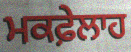
ਮਕਫ਼ੇਲਾਹ